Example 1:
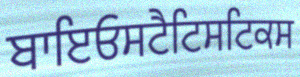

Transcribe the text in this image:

ਬਾਇਓਸਟੈਟਿਸਟਿਕਸ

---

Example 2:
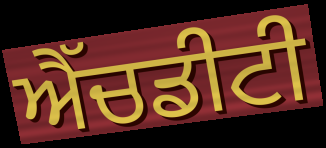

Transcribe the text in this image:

ਐੱਚਡੀਟੀ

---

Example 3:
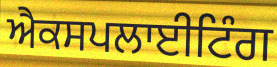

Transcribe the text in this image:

ਐਕਸਪਲਾਈਟਿੰਗ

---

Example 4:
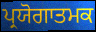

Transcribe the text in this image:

ਪ੍ਰਯੋਗਾਤਮਕ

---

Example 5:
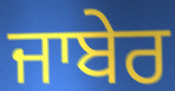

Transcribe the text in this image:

ਜਾਬੇਰ